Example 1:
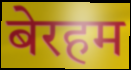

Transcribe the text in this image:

बेरहम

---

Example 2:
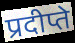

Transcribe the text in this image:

प्रदीप्ते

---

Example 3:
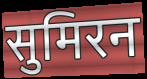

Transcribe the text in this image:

सुमिरन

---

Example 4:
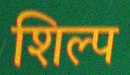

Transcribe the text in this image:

शिल्‍प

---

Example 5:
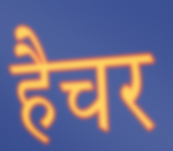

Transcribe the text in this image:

हैचर